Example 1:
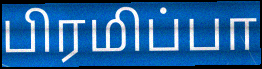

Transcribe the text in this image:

பிரமிப்பா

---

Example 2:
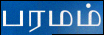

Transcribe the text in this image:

பரமம்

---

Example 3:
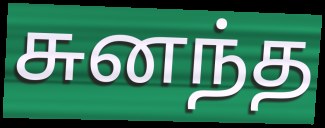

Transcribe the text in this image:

சுனந்த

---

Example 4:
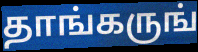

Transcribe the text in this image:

தாங்கருங்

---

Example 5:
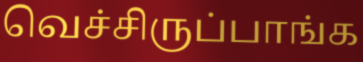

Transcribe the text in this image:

வெச்சிருப்பாங்க